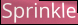
Sprinkle